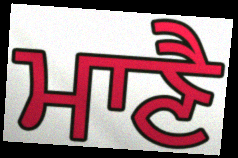
ਮਾਣੈ